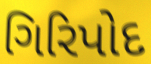
ગિરિપોદ